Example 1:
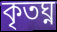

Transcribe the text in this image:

কৃতঘ্ন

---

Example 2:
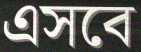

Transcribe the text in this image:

এসবে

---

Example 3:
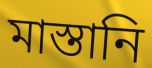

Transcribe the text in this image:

মাস্তানি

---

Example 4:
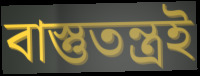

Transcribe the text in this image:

বাস্তুতন্ত্রই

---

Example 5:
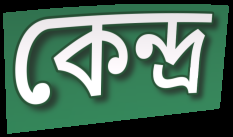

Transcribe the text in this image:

কেন্দ্র